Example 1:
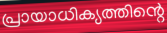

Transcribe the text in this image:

പ്രായാധിക്യത്തിന്റെ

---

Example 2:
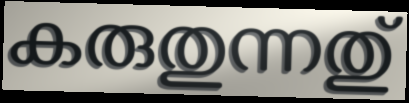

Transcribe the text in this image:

കരുതുന്നതു്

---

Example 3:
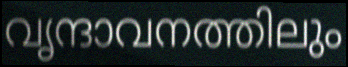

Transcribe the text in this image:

വൃന്ദാവനത്തിലും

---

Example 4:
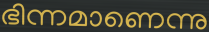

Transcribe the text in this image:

ഭിന്നമാണെന്നു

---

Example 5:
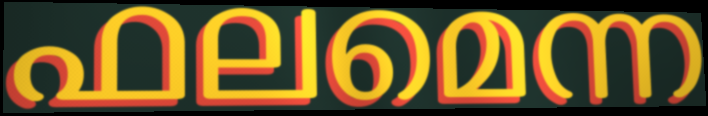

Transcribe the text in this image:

ഫലമെന്ന